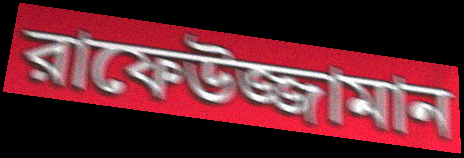
রাফেউজ্জামান